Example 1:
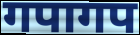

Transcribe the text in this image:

गपागप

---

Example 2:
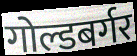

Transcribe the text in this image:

गोल्डबर्गर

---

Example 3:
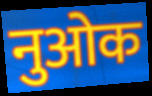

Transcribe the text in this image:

नुओक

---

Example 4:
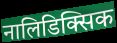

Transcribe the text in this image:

नालिडिक्सिक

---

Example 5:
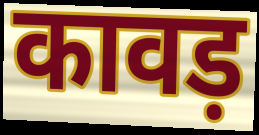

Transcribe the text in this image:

कावड़